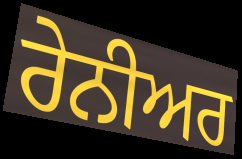
ਰੇਨੀਅਰ